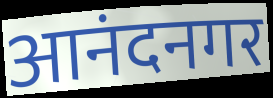
आनंदनगर